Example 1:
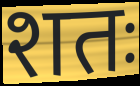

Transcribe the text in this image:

शतः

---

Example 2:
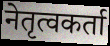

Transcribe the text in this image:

नेतृत्वकर्ता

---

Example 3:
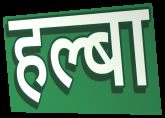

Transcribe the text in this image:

हल्बा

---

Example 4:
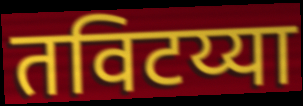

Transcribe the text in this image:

तविटय्या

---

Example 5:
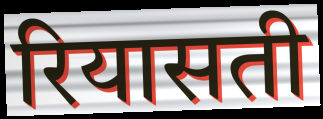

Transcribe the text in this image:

रियासती